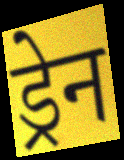
ड्रेन